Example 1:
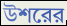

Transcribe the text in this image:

উশরের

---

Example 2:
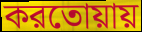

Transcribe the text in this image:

করতোয়ায়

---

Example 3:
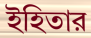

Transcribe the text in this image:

ইহিতার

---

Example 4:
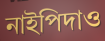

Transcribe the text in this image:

নাইপিদাও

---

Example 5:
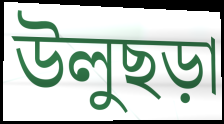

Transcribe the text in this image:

উলুছড়া